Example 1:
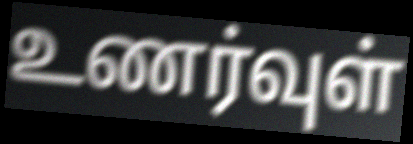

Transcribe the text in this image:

உணர்வுள்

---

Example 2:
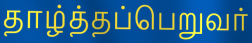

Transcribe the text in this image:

தாழ்த்தப்பெறுவர்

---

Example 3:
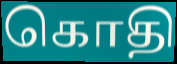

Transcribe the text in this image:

கொதி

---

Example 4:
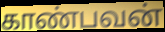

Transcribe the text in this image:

காண்பவன்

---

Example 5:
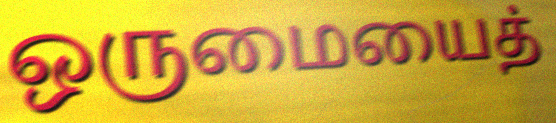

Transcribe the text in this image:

ஒருமையைத்